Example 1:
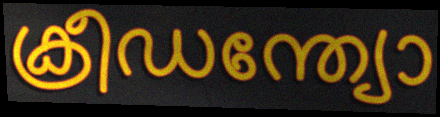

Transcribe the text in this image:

ക്രീഡന്ത്യോ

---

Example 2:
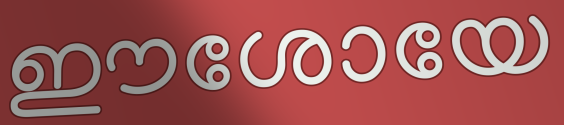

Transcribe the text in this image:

ഈശോയേ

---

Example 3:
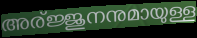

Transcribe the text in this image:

അര്ജ്ജുനനുമായുള്ള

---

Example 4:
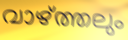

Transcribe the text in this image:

വാഴ്ത്തലും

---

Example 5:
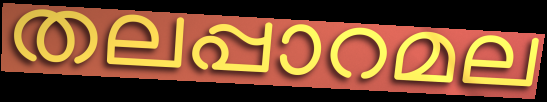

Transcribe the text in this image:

തലപ്പാറമല